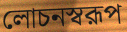
লোচনস্বরূপ